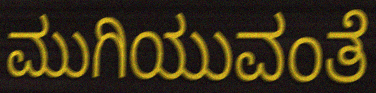
ಮುಗಿಯುವಂತೆ